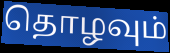
தொழவும்